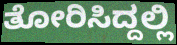
ತೋರಿಸಿದ್ದಲ್ಲಿ